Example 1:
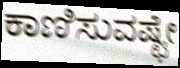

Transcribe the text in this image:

ಕಾಣಿಸುವಷ್ಟೇ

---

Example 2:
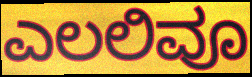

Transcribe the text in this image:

ಎಲಲಿವೂ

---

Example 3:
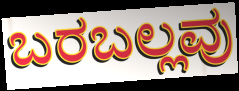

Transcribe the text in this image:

ಬರಬಲ್ಲವು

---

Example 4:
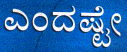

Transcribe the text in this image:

ಎಂದಷ್ಟೇ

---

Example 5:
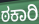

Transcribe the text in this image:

ಠಕಾರಿ